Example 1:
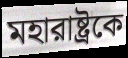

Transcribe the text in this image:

মহারাষ্ট্রকে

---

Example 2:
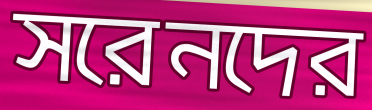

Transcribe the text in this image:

সরেনদের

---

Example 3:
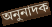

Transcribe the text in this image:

অনুনাদক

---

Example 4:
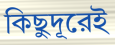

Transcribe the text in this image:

কিছুদূরেই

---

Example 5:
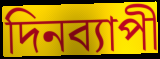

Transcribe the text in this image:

দিনব্যাপী